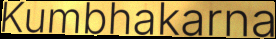
Kumbhakarna